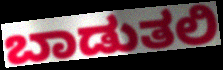
ಬಾಡುತಲಿ